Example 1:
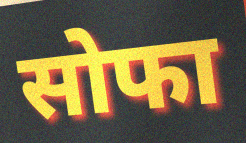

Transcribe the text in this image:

सोफा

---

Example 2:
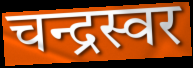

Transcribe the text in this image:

चन्द्रस्वर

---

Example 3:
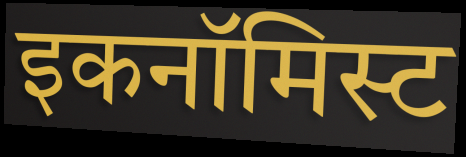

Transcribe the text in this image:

इकनॉमिस्‍ट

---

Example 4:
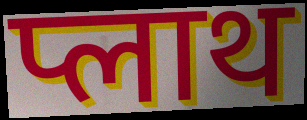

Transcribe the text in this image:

प्लाथ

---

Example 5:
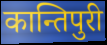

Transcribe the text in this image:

कान्तिपुरी